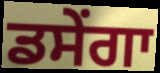
ਡਸੇਂਗਾ